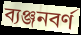
ব্যঞ্জনবৰ্ণ